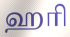
ஹரி